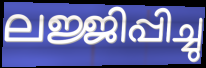
ലജ്ജിപ്പിച്ചു